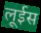
लूईस